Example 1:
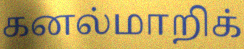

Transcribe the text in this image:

கனல்மாறிக்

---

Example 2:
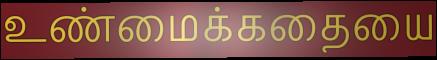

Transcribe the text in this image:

உண்மைக்கதையை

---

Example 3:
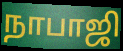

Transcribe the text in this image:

நாபாஜி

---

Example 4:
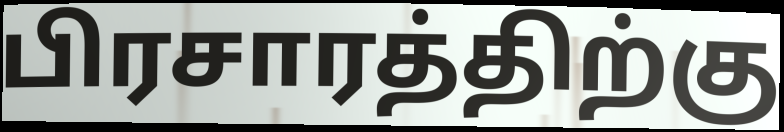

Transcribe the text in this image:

பிரசாரத்திற்கு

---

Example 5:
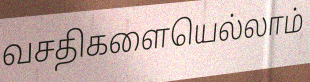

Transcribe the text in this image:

வசதிகளையெல்லாம்